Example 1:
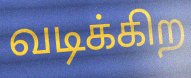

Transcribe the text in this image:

வடிக்கிற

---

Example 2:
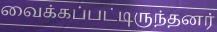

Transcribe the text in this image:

வைக்கப்பட்டிருந்தனர்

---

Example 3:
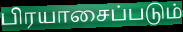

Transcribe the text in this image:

பிரயாசைப்படும்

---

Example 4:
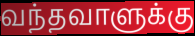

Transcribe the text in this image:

வந்தவாளுக்கு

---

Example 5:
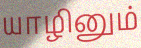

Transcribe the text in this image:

யாழினும்